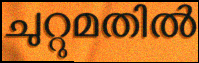
ചുറ്റുമതിൽ